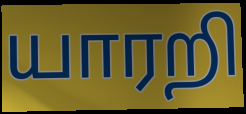
யாரறி